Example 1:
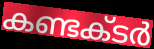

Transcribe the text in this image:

കണ്ടക്‌ടർ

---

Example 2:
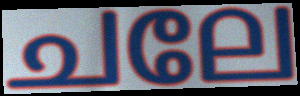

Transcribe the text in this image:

ചലേ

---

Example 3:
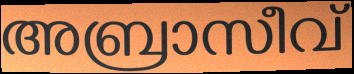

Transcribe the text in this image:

അബ്രാസീവ്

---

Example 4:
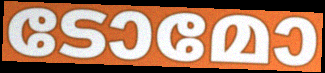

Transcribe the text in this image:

ടോമോ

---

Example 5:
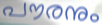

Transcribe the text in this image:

പൗരനും